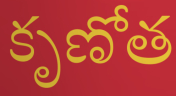
కృణోత